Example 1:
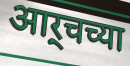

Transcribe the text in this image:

आर्चच्या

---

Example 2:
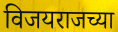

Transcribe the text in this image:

विजयराजच्या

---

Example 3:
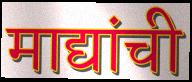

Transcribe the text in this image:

माद्यांची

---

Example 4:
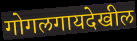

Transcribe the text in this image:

गोगलगायदेखील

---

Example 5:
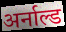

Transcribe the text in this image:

अर्नाल्ड